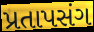
પ્રતાપસંગ